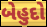
બેહુદો